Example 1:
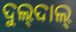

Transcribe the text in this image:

ଦୁଲ୍‍ଦାଲ୍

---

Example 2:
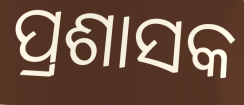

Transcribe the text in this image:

ପ୍ରଶାସକ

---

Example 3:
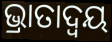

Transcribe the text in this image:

ଭ୍ରାତାଦ୍ୱୟ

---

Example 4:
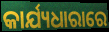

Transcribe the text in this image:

କାର୍ଯ୍ୟଧାରାରେ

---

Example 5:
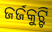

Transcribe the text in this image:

ଜର୍ଜକୁଟ୍ଟି